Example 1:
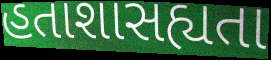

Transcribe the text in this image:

હતાશાસહ્યતા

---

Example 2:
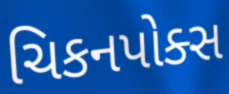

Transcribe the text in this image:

ચિકનપોક્સ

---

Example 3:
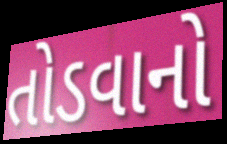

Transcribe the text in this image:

તોડવાનો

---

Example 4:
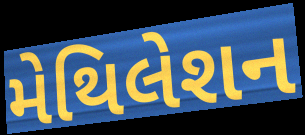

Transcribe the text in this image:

મેથિલેશન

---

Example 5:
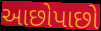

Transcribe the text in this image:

આછોપાછો